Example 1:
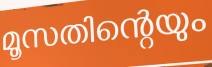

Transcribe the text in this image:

മൂസതിന്റെയും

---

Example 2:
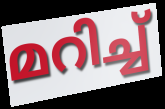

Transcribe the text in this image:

മറിച്ച്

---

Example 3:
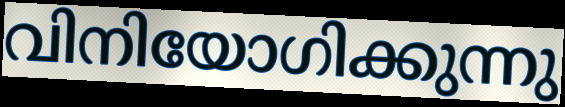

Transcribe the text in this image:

വിനിയോഗിക്കുന്നു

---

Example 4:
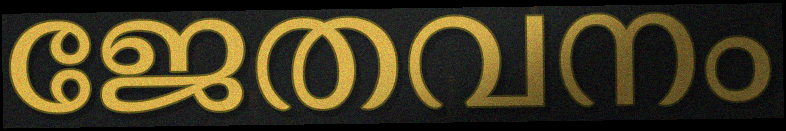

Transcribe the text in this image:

ജേതവനം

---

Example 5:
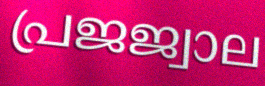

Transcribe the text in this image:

പ്രജജ്വാല